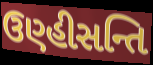
ઉણ્હીસન્તિ